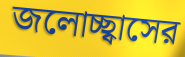
জলোচ্ছ্বাসের